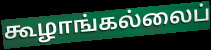
கூழாங்கல்லைப்